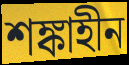
শঙ্কাহীন